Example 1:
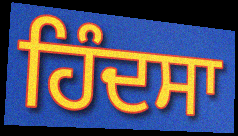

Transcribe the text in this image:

ਹਿੰਦਸਾ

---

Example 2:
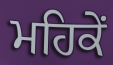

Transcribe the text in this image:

ਮਹਿਕੇਂ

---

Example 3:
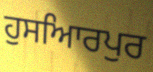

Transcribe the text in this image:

ਹੁਸਆਿਰਪੁਰ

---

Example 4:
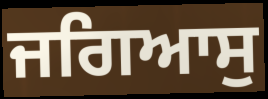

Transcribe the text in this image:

ਜਗਿਆਸੁ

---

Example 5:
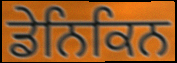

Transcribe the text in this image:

ਡੇਨਿਕਿਨ